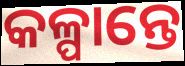
କଳ୍ପାନ୍ତେ